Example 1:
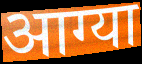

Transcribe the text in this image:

आग्या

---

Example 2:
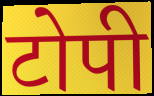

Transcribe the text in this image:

टोपी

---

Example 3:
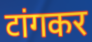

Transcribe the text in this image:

टांगकर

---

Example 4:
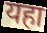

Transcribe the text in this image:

यहा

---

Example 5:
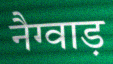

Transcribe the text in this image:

नैग्वाड़